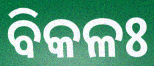
ବିକଳଃ